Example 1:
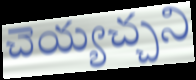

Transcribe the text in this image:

చెయ్యచ్చని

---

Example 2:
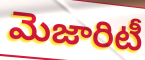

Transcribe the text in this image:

మెజారిటీ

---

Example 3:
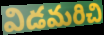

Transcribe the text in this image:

విడమరిచి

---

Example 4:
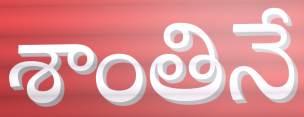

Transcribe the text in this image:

శాంతినే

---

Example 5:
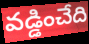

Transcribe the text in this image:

వడ్డించేది